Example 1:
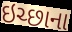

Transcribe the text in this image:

ઇચ્છાના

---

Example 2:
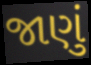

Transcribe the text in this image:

જાણું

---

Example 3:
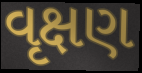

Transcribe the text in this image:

વૃક્ષણ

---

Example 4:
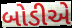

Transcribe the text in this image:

બોડીએ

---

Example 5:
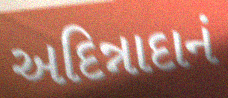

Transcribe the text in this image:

અદિન્નાદાનં